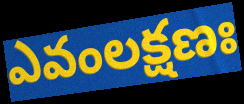
ఎవంలక్షణః